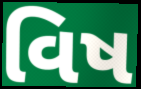
વિષ